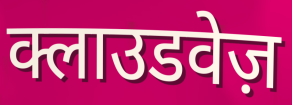
क्लाउडवेज़